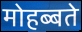
मोहब्बते